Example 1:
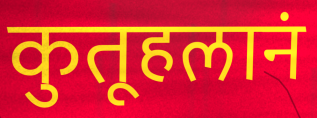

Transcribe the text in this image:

कुतूहलानं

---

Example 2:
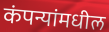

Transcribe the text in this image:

कंपन्यांमधील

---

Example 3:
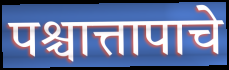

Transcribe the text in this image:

पश्चात्तापाचे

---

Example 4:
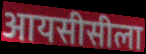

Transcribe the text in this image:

आयसीसीला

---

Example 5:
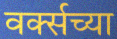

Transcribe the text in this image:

वर्क्‍सच्या